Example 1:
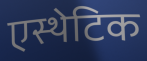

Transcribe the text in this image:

एस्थेटिक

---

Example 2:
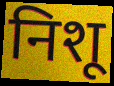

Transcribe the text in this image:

निशू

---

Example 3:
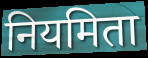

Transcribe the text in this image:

नियमिता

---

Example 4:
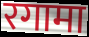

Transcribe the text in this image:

रगामा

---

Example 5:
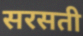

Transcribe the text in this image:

सरसती